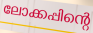
ലോക്കപ്പിന്റെ